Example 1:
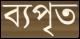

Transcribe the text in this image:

ব্যপৃত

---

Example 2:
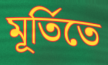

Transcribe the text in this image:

মূর্তিতে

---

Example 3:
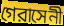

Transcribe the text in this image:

গেরাসেনী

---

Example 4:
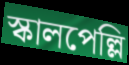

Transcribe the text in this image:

স্কালপেল্লি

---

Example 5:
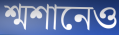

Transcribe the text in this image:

শ্মশানেও